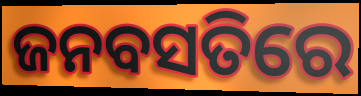
ଜନବସତିରେ